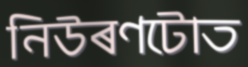
নিউৰণটোত